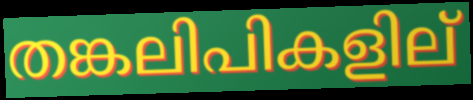
തങ്കലിപികളില്